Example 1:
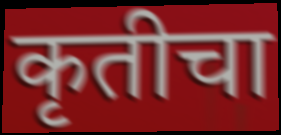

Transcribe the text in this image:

कृतीचा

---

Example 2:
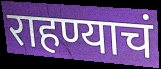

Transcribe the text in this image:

राहण्याचं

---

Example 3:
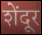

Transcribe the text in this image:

शेंदूर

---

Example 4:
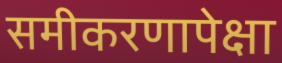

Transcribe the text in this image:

समीकरणापेक्षा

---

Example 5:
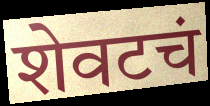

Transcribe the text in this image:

शेवटचं